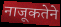
नाजूकतेने